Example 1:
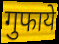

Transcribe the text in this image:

गुफाये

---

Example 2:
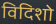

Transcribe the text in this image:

विदिशो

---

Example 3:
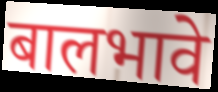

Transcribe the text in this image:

बालभावे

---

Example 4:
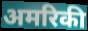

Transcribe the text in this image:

अमरिकी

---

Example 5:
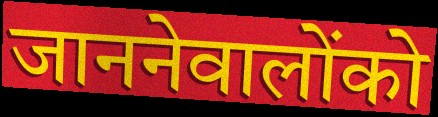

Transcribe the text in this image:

जाननेवालोंको